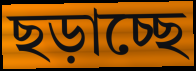
ছড়াচ্ছে